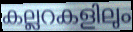
കല്ലറകളിലും